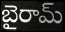
బైరామ్